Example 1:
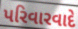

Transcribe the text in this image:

પરિવારવાદે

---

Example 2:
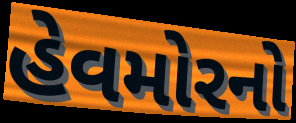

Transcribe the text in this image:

હેવમોરનો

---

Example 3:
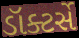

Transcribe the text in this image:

ડૉક્ટર્સે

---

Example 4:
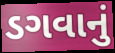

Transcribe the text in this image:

ડગવાનું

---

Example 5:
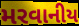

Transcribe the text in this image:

મરવાનીય